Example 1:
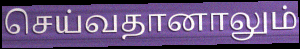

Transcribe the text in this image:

செய்வதானாலும்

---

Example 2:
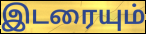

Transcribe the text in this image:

இடரையும்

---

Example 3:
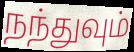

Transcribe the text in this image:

நந்துவும்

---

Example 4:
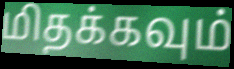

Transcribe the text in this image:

மிதக்கவும்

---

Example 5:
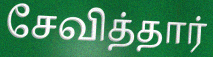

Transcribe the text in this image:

சேவித்தார்